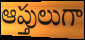
ఆప్తులుగా